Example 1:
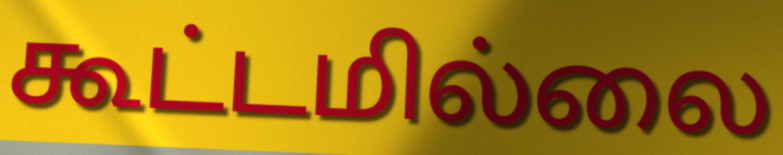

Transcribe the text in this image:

கூட்டமில்லை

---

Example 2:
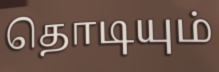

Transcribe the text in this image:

தொடியும்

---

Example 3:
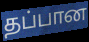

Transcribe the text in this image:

தப்பான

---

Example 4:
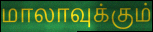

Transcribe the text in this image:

மாலாவுக்கும்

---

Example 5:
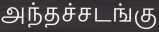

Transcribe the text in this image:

அந்தச்சடங்கு